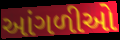
આંગળીઓ